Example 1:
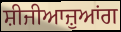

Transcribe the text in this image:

ਸ਼ੀਜੀਆਜ਼ੁਆਂਗ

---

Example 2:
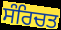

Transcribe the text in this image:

ਸੰਰਿਚਤ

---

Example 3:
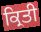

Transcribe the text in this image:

ਕ੍ਰਿਤੀ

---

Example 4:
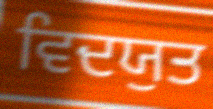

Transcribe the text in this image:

ਵਿਦਯੁਤ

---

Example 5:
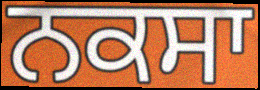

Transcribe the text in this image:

ਨਕਸਾ